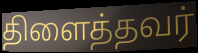
திளைத்தவர்